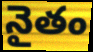
నైతం